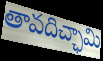
తావదిచ్ఛామి